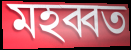
মহব্বত